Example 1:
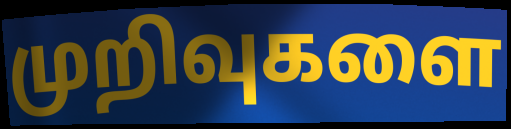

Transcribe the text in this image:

முறிவுகளை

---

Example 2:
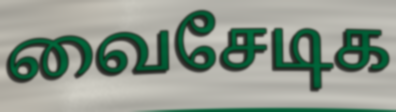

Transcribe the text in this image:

வைசேடிக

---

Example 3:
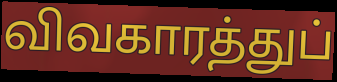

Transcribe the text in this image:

விவகாரத்துப்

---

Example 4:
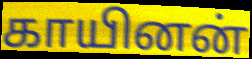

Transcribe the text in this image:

காயினன்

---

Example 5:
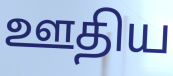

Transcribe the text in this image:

ஊதிய